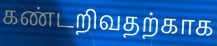
கண்டறிவதற்காக